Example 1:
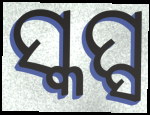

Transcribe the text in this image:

ସ୍କପ୍ସ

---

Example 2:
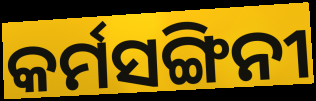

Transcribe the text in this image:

କର୍ମସଙ୍ଗିନୀ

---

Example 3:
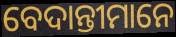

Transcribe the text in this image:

ବେଦାନ୍ତୀମାନେ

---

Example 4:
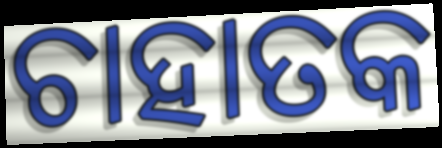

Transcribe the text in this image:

ଚାହାତକ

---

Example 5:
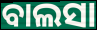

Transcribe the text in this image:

ବାଲସା